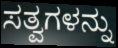
ಸತ್ವಗಳನ್ನು